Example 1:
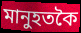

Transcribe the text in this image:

মানুহতকৈ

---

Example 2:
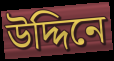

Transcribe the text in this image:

উদ্দিনে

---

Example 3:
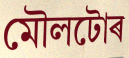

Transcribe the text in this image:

মৌলটোৰ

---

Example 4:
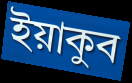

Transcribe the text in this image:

ইয়াকুব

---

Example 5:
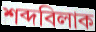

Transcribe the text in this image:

শব্দবিলাক